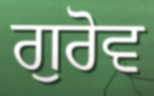
ਗੁਰੋਵ